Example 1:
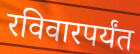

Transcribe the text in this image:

रविवारपर्यंत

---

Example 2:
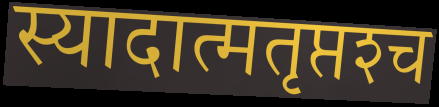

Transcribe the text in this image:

स्यादात्मतृप्तश्च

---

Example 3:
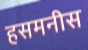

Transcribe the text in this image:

हसमनीस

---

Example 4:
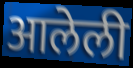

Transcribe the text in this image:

आलेली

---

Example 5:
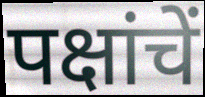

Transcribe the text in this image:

पक्षांचें